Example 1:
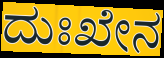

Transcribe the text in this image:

ದುಃಖೇನ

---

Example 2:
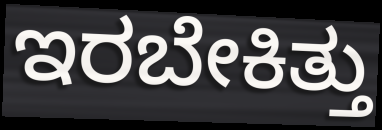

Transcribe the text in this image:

ಇರಬೇಕಿತ್ತು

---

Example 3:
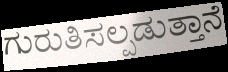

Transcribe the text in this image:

ಗುರುತಿಸಲ್ಪಡುತ್ತಾನೆ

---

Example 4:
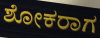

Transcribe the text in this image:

ಶೋಕರಾಗ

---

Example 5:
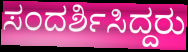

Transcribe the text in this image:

ಸಂದರ್ಶಿಸಿದ್ದರು